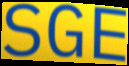
SGE